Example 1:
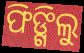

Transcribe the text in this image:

ଫିଙ୍ଗିଲୁ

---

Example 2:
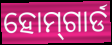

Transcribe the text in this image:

ହୋମ୍‌ଗାର୍ଡ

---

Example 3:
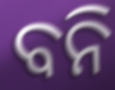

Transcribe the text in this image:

ବନି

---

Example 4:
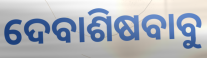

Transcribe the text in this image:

ଦେବାଶିଷବାବୁ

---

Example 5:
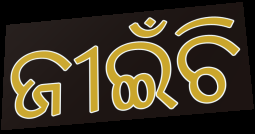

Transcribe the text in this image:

ଜୀଇଁଚି